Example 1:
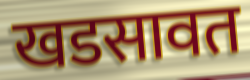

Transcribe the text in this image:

खडसावत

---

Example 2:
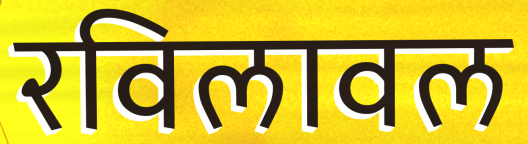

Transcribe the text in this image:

रविलावल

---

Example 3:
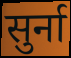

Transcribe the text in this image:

सुर्ना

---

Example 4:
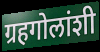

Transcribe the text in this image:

ग्रहगोलांशी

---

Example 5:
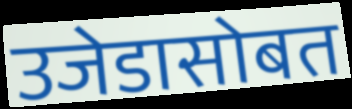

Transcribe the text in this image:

उजेडासोबत